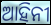
ଆହିନୀ